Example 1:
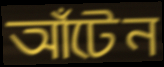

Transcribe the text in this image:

আঁটেন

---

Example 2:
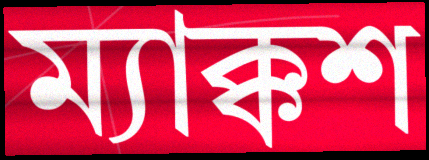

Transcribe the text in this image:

ম্যাক্কশ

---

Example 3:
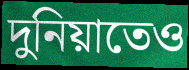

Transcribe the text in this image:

দুনিয়াতেও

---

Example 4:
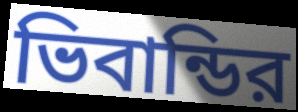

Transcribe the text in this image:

ভিবান্ডির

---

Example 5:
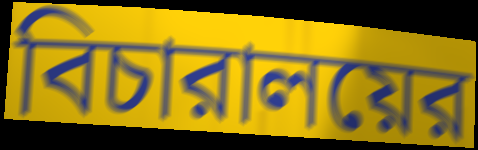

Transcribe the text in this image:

বিচারালয়ের